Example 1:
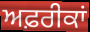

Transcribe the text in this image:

ਅਫ਼ਰੀਕਾਂ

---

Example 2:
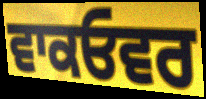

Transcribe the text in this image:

ਵਾਕਓਵਰ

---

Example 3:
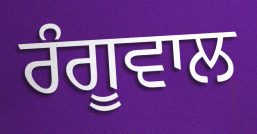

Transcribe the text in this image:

ਰੰਗੂਵਾਲ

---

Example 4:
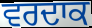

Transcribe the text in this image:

ਵਰਦਾਕ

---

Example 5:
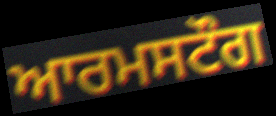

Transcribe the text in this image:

ਆਰਮਸਟੌਗ